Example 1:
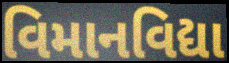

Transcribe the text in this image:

વિમાનવિદ્યા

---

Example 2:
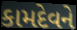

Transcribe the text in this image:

કામદેવને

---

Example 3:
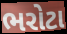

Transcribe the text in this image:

ભરોટા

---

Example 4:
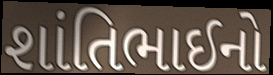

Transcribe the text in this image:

શાંતિભાઈનો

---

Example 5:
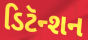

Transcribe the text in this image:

ડિટૅન્શન